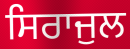
ਸਿਰਾਜੁਲ